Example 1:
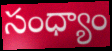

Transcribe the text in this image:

సంధ్యాం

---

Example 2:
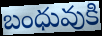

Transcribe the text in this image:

బంధువుకి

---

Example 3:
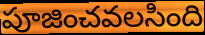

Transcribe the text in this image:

పూజించవలసింది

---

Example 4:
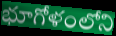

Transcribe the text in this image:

భూగోళంలోని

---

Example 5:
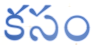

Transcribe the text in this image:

కసం